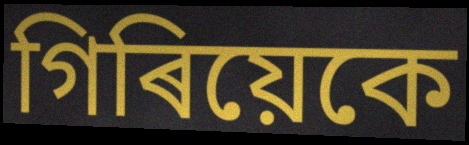
গিৰিয়েকে